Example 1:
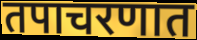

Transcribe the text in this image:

तपाचरणात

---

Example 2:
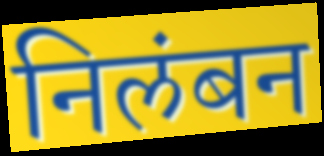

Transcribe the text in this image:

निलंबन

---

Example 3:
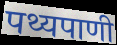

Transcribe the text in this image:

पथ्यपाणी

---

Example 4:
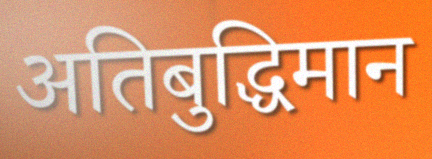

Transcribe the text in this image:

अतिबुद्धिमान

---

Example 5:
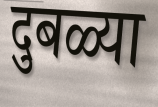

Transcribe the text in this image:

दुबळ्या